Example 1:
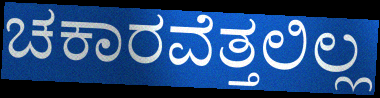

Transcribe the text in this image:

ಚಕಾರವೆತ್ತಲಿಲ್ಲ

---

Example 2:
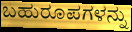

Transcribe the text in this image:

ಬಹುರೂಪಗಳನ್ನು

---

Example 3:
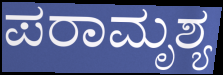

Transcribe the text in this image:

ಪರಾಮೃಶ್ಯ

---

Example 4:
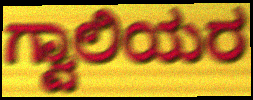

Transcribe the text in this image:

ಗ್ವಾಲಿಯರ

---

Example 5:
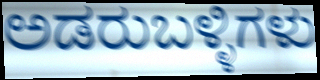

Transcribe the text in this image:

ಅಡರುಬಳ್ಳಿಗಳು